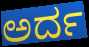
ಅರ್ದ